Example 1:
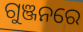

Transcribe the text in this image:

ଗୁଞ୍ଜନରେ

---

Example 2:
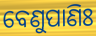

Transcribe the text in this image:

ବେଣୁପାଣିଃ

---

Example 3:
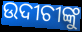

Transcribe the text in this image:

ଉଦୀଚୀଙ୍କୁ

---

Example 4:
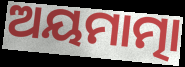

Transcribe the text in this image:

ଅୟମାତ୍ମା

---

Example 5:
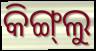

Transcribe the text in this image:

କିଙ୍ଗ୍‌ଲୁ